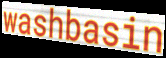
washbasin